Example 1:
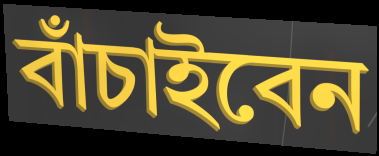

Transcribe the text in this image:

বাঁচাইবেন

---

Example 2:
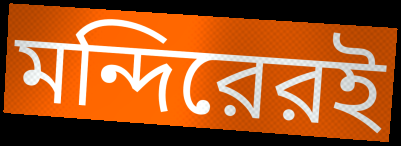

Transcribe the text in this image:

মন্দিরেরই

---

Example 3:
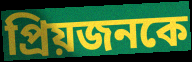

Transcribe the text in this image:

প্রিয়জনকে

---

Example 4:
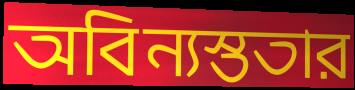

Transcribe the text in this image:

অবিন্যস্ততার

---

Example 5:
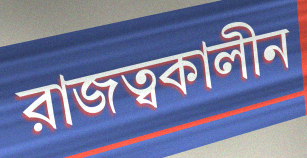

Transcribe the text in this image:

রাজত্বকালীন